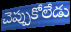
చెప్పుకోలేడు